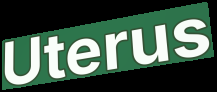
Uterus